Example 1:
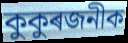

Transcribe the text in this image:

কুকুৰজনীক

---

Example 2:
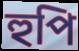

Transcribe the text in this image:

হুপি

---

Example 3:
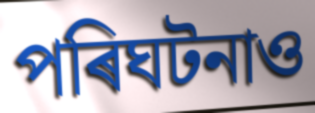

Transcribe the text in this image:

পৰিঘটনাও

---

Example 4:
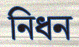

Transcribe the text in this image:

নিধন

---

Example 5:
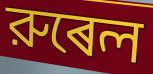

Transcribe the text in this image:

ৰুৰেল